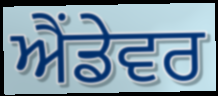
ਐਂਡੇਵਰ